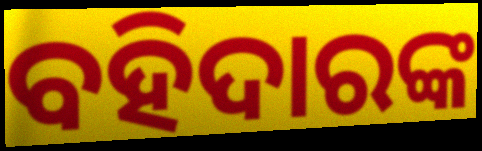
ବହିଦାରଙ୍କ